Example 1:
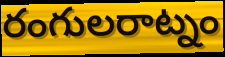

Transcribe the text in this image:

రంగులరాట్నం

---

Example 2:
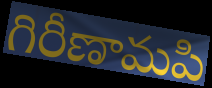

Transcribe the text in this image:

గిరీణామపి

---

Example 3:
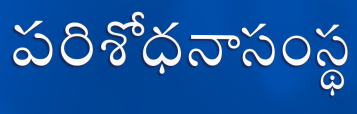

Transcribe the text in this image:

పరిశోధనాసంస్థ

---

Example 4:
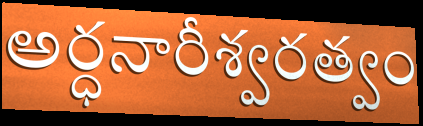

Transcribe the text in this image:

అర్ధనారీశ్వరత్వం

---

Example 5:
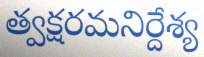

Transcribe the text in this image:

త్వక్షరమనిర్దేశ్య